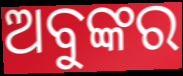
ଅବୁଙ୍କର